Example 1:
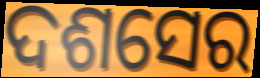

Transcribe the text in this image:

ଦଶସେର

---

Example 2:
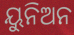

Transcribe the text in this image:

ୟୁନିଅନ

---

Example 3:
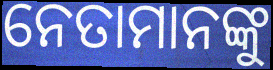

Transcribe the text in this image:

ନେତାମାନଙ୍କୁ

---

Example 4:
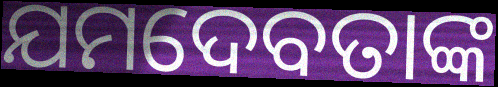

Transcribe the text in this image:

ଯମଦେବତାଙ୍କ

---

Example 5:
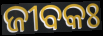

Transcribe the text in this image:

ଜୀବକଃ